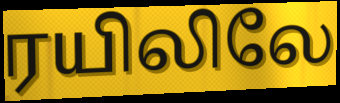
ரயிலிலே